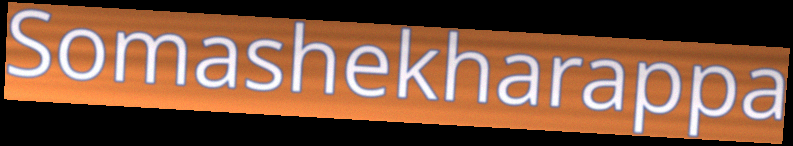
Somashekharappa